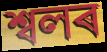
শ্বলৰ